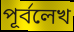
পূর্বলেখ